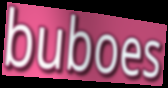
buboes